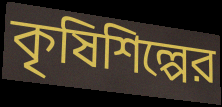
কৃষিশিল্পের